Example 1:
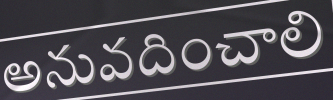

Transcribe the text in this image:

అనువదించాలి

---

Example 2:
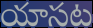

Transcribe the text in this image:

యాసట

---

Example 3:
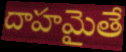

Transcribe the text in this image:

దాహమైతే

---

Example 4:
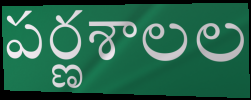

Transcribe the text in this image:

పర్ణశాలల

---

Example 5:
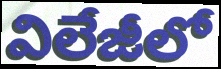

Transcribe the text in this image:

విలేజీలో